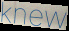
knew